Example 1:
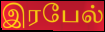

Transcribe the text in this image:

இரபேல்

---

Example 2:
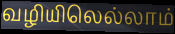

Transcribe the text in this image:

வழியிலெல்லாம்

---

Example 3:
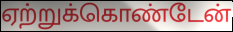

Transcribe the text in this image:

ஏற்றுக்கொண்டேன்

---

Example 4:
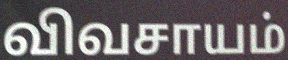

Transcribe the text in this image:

விவசாயம்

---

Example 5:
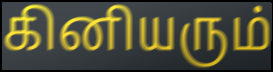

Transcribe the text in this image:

கினியரும்